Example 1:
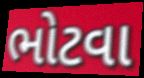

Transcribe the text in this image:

ભોટવા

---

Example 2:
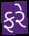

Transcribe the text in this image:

ફરે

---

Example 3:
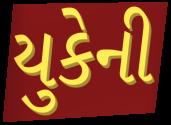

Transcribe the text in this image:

યુકેની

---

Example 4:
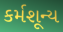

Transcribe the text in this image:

કર્મશૂન્ય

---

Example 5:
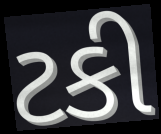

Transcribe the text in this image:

ટકી